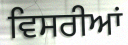
ਵਿਸਰੀਆਂ